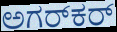
ಅಗರ್‌ಕರ್